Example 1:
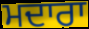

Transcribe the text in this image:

ਮਦਾਰਾ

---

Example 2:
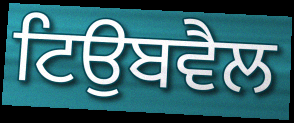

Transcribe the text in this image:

ਟਿਉਬਵੈਲ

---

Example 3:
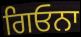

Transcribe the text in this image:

ਗਿਓਨਾ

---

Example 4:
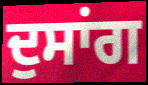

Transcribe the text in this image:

ਦੁਸਾਂਗ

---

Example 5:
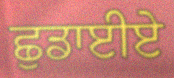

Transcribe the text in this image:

ਛੁਡਾਈਏ